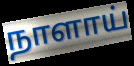
நாளாய்